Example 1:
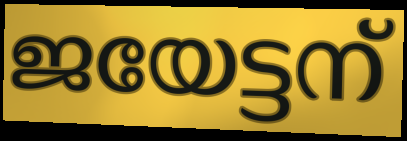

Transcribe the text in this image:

ജയേട്ടന്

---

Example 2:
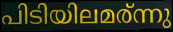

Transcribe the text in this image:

പിടിയിലമര്ന്നു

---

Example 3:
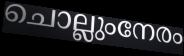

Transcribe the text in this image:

ചൊല്ലുംനേരം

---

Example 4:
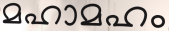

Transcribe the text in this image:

മഹാമഹം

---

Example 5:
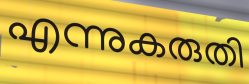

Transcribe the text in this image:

എന്നുകരുതി